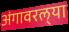
अंगावरल्या